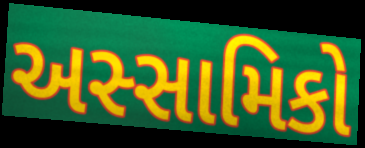
અસ્સામિકો